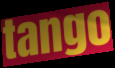
tango